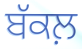
ਬੱਕਲ਼